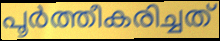
പൂർത്തീകരിച്ചത്